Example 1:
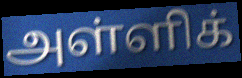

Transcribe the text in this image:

அள்ளிக்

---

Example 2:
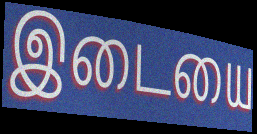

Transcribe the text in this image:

இடையை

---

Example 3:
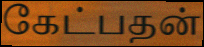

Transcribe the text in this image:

கேட்பதன்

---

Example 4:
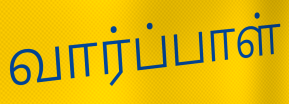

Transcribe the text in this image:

வார்ப்பாள்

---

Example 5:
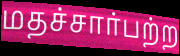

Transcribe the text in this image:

மதச்சார்பற்ற